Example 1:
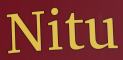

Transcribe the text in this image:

Nitu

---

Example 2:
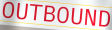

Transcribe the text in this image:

OUTBOUND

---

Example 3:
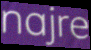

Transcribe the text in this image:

najre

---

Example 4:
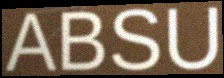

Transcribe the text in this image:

ABSU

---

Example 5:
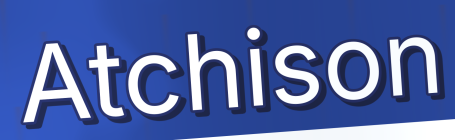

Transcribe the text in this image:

Atchison